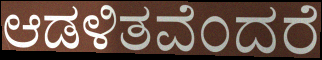
ಆಡಳಿತವೆಂದರೆ